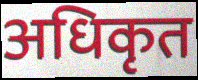
अधिकृत